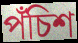
পঁচিশ